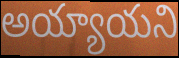
అయ్యాయని